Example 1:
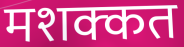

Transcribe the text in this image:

मशक्‍कत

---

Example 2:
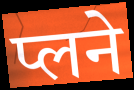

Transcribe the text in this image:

प्लने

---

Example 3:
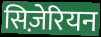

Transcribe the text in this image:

सिज़ेरियन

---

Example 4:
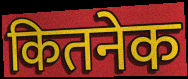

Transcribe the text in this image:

कितनेक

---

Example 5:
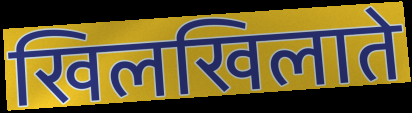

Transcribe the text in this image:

खिलखिलाते